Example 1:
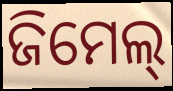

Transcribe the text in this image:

ଜିମେଲ୍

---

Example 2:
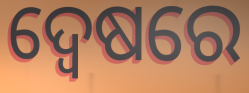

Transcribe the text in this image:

ଦ୍ୱେଷରେ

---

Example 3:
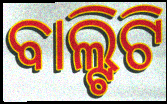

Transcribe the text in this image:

ବାଲ୍ଟିଟି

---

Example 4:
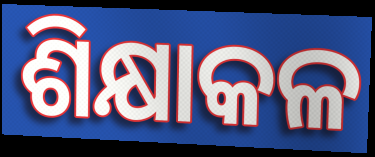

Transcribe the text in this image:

ଶିକ୍ଷାକଳ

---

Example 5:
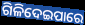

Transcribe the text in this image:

ଗିଳିଦେଇପାରେ